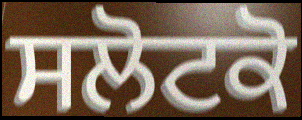
ਸਲੋਟਕੋ